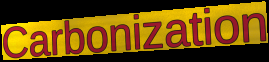
Carbonization